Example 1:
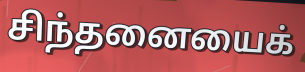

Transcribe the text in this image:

சிந்தனையைக்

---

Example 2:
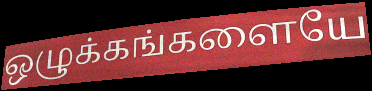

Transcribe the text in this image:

ஒழுக்கங்களையே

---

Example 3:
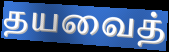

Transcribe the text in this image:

தயவைத்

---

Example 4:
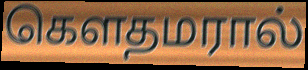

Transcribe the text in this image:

கௌதமரால்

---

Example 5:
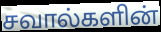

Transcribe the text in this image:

சவால்களின்